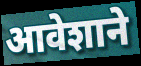
आवेशाने